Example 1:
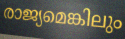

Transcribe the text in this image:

രാജ്യമെങ്കിലും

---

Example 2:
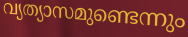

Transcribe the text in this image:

വ്യത്യാസമുണ്ടെന്നും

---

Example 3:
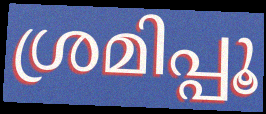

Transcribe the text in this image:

ശ്രമിപ്പൂ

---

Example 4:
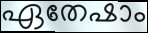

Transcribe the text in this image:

ഏതേഷാം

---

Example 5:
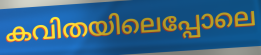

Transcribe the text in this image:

കവിതയിലെപ്പോലെ